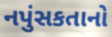
નપુંસકતાનો